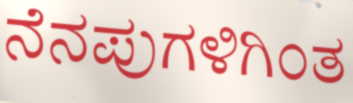
ನೆನಪುಗಳಿಗಿಂತ